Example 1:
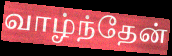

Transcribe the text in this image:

வாழ்ந்தேன்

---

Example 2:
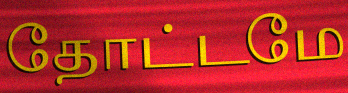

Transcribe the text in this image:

தோட்டமே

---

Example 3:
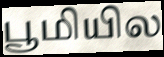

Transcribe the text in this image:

பூமியில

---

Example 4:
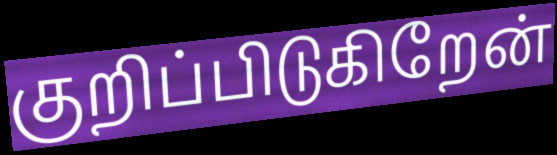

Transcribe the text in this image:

குறிப்பிடுகிறேன்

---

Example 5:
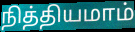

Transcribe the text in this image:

நித்தியமாம்